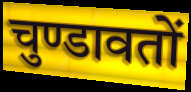
चुण्डावतों